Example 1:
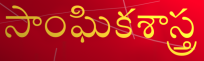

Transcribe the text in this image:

సాంఘికశాస్త్ర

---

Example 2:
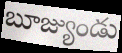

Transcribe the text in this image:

బూజ్యుండు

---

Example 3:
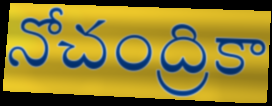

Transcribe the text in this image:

నోచంద్రికా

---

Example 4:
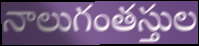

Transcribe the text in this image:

నాలుగంతస్తుల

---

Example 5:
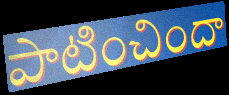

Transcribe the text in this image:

పాటించిందా